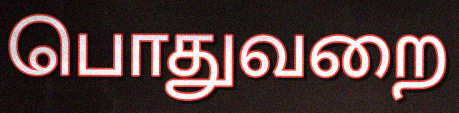
பொதுவறை